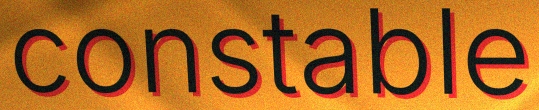
constable